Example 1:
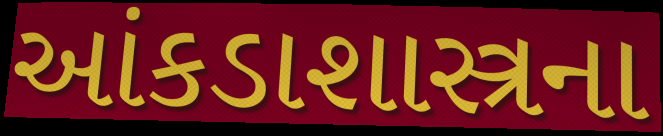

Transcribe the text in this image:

આંકડાશાસ્ત્રના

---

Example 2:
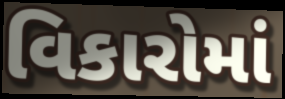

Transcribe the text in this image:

વિકારોમાં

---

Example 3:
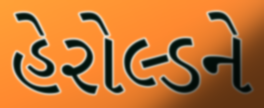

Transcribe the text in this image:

હેરોલ્ડને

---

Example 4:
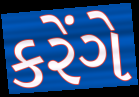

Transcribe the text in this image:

કરેંગે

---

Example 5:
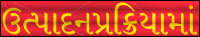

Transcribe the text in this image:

ઉત્પાદનપ્રક્રિયામાં